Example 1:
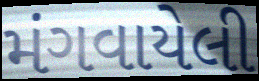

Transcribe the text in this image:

મંગવાયેલી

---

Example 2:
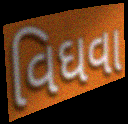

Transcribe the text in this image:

વિઘવા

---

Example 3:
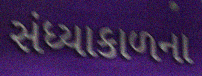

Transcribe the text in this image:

સંધ્યાકાળના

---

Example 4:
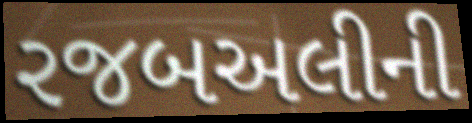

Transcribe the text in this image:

રજબઅલીની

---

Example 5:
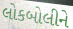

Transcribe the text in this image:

લોકબોલીને